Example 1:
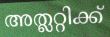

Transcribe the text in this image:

അത്ലറ്റിക്ക്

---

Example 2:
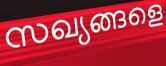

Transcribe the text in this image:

സഖ്യങ്ങളെ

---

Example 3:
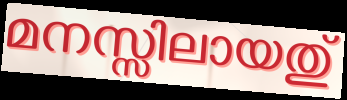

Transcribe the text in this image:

മനസ്സിലായതു്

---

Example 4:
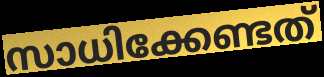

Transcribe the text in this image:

സാധിക്കേണ്ടത്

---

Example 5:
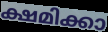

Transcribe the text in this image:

ക്ഷമിക്കാ